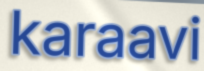
karaavi